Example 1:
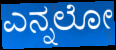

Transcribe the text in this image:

ಎನ್ನಲೋ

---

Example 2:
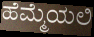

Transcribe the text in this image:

ಹೆಮ್ಮೆಯಲಿ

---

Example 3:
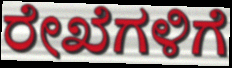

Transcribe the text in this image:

ರೇಖೆಗಳಿಗೆ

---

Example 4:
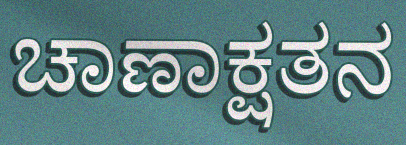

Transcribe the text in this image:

ಚಾಣಾಕ್ಷತನ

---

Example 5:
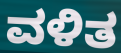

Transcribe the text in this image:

ವಳಿತ